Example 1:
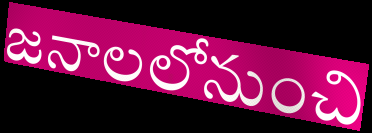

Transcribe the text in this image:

జనాలలోనుంచి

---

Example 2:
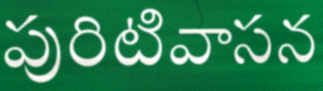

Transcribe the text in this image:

పురిటివాసన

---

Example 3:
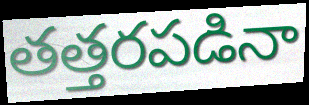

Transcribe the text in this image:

తత్తరపడినా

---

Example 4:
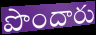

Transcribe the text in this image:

పొందారు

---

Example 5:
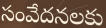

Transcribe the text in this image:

సంవేదనలకు